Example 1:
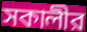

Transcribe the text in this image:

সকালীর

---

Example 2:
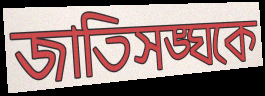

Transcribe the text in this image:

জাতিসঙ্ঘকে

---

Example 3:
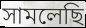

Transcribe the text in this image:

সামলেছি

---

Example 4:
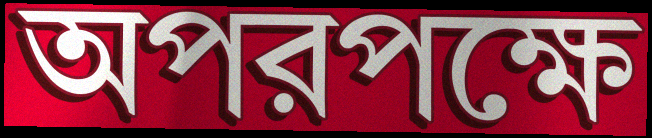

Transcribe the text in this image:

অপরপক্ষে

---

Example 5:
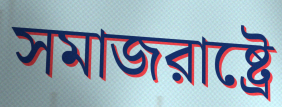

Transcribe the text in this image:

সমাজরাষ্ট্রে